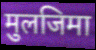
मुलजिमा